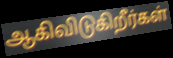
ஆகிவிடுகிறீர்கள்